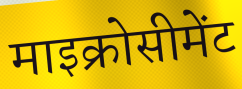
माइक्रोसीमेंट